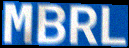
MBRL